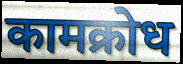
कामक्रोध